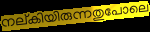
നല്കിയിരുന്നതുപോലെ